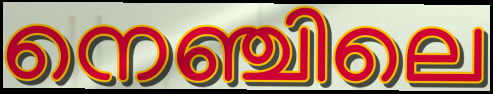
നെഞ്ചിലെ